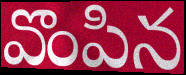
వొంపిన